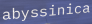
abyssinica